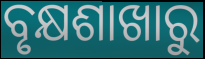
ବୃକ୍ଷଶାଖାରୁ